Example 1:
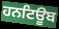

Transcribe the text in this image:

ਹਨਟਿਊਬ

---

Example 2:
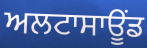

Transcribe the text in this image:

ਅਲਟਾਸਾਊਂਡ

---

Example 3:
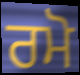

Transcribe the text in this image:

ਰਮੋ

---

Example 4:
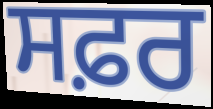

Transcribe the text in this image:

ਸਫ਼ਰ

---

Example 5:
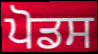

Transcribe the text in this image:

ਪੋਡਸ